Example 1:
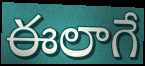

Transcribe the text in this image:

ఈలాగే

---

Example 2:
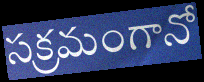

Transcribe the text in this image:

సక్రమంగానో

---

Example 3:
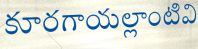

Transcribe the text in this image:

కూరగాయల్లాంటివి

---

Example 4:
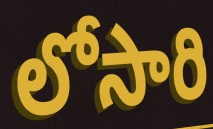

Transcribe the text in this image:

లోసారి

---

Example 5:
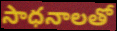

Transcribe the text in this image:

సాధనాలతో